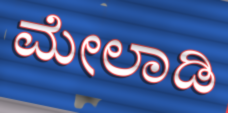
ಮೇಲಾಡಿ